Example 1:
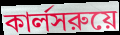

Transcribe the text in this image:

কার্লসরুয়ে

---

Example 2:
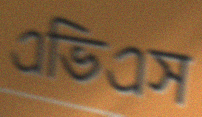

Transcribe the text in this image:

এভিএস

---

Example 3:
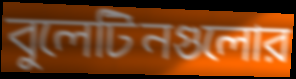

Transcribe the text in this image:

বুলেটিনগুলোর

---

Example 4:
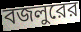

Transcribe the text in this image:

বজলুরের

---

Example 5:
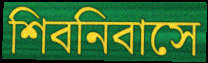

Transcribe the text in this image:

শিবনিবাসে